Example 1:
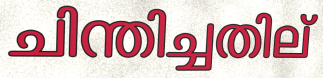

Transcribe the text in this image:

ചിന്തിച്ചതില്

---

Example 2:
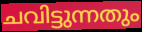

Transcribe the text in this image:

ചവിട്ടുന്നതും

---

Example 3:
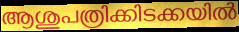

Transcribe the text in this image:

ആശുപത്രിക്കിടക്കയിൽ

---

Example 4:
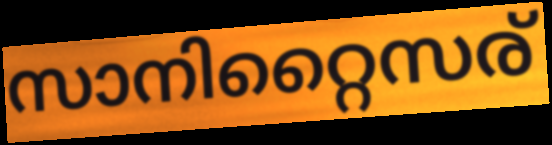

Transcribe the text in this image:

സാനിറ്റൈസര്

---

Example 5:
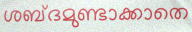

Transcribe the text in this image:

ശബ്ദമുണ്ടാക്കാതെ